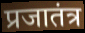
प्रजातंत्र